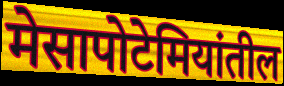
मेसापोटेमियांतील